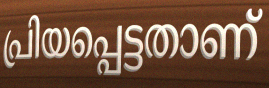
പ്രിയപ്പെട്ടതാണ്